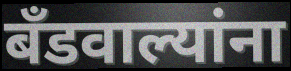
बँडवाल्यांना